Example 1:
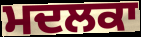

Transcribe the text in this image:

ਮਦਲਕਾ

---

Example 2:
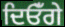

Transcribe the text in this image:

ਦਿਓਁਗੇ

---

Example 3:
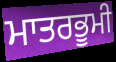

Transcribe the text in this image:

ਮਾਤਰਭੂਮੀ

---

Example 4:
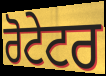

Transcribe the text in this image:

ਰੋਟੇਟਰ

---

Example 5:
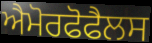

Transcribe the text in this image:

ਐਮੋਰਫੋਫੈਲਸ